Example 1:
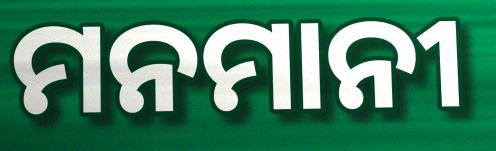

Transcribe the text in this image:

ମନମାନୀ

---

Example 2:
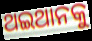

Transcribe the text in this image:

ଥଇଥାନକୁ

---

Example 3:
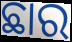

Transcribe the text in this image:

ଛାର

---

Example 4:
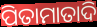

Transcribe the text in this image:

ପିତାମାତାଦି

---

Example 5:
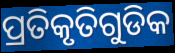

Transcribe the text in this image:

ପ୍ରତିକୃତିଗୁଡିକ